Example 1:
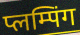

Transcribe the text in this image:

प्लम्पिंग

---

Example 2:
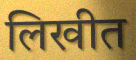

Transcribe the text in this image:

लिखीत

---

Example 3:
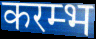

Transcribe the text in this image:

करम्भ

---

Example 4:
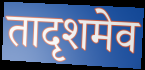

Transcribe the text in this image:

तादृशमेव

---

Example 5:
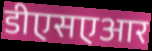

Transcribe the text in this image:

डीएसएआर